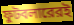
ফুটবলারেরই